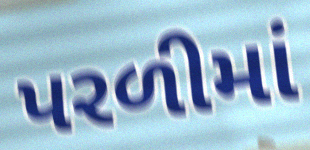
પરળીમાં